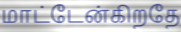
மாட்டேன்கிறதே